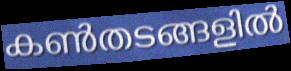
കൺതടങ്ങളിൽ